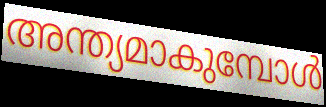
അന്ത്യമാകുമ്പോൾ